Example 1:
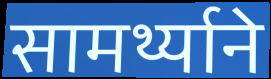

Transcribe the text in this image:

सामर्थ्याने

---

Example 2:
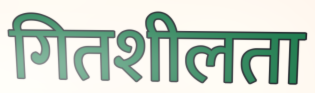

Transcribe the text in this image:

गितशीलता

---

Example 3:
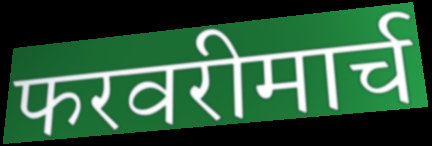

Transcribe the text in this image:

फरवरीमार्च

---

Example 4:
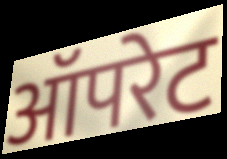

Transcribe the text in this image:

ऑपरेट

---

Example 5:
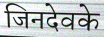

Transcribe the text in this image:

जिनदेवके